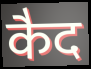
कैद